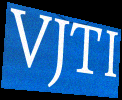
VJTI